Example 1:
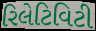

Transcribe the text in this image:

રિલેટિવિટી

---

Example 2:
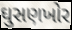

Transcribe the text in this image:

ઘુસણખોર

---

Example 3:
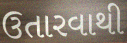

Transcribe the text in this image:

ઉતારવાથી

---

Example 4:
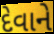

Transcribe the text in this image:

દેવાને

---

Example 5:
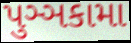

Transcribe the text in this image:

પુઞ્ઞકામા